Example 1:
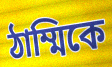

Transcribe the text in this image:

ঠাম্মিকে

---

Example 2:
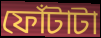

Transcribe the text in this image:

ফোঁটাটা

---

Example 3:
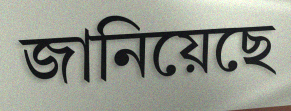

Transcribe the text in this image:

জানিয়েছে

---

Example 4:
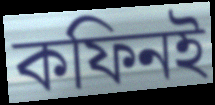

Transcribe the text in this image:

কফিনই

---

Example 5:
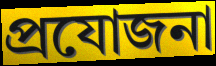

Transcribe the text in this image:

প্রযোজনা